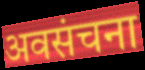
अवसंचना